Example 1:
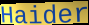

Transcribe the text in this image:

Haider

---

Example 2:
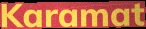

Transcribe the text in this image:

Karamat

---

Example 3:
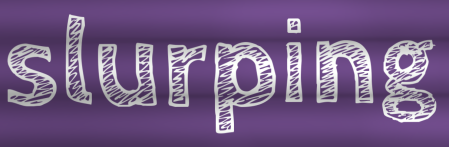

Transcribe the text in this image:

slurping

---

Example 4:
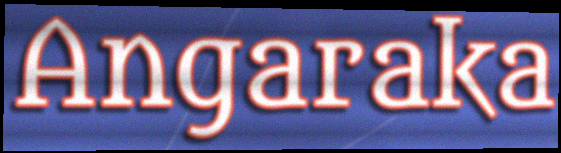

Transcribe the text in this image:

Angaraka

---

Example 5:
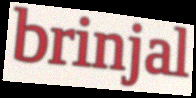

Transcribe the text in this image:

brinjal